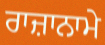
ਰਾਜ਼ਾਨਾਮੇ